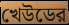
খেউডের